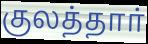
குலத்தார்